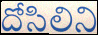
దోసిలిని